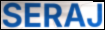
SERAJ